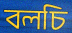
বলচি